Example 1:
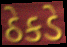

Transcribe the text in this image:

ઠેકડે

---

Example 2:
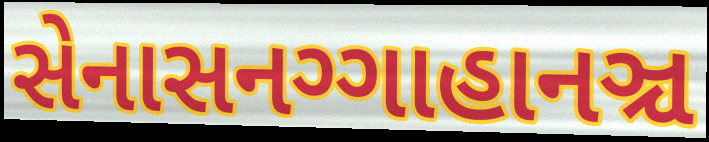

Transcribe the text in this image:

સેનાસનગ્ગાહાનઞ્ચ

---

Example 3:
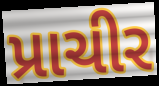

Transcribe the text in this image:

પ્રાચીર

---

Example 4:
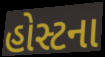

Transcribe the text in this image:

હોસ્ટના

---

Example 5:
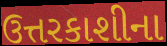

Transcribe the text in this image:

ઉત્તરકાશીના